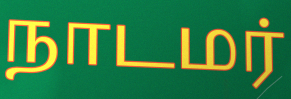
நாடமர்